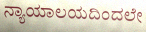
ನ್ಯಾಯಾಲಯದಿಂದಲೇ